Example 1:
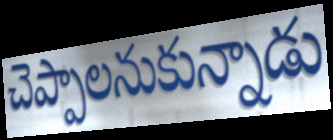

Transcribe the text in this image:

చెప్పాలనుకున్నాడు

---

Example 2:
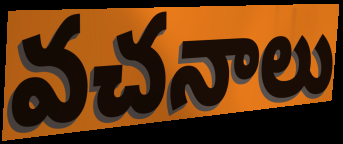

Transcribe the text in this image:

వచనాలు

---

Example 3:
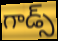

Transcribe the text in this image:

గాడ్స్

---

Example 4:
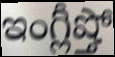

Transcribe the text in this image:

ఇంగ్లీష్తో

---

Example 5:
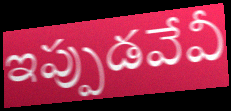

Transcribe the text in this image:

ఇప్పుడవేవీ